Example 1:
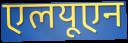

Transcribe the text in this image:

एलयूएन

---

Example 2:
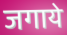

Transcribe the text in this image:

जगाये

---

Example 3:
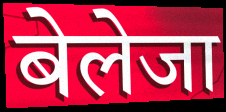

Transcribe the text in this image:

बेलेजा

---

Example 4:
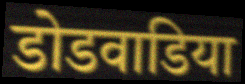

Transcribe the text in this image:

डोडवाडिया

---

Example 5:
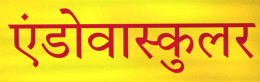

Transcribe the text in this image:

एंडोवास्कुलर